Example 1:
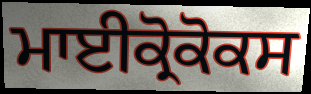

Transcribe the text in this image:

ਮਾਈਕ੍ਰੋਕੋਕਸ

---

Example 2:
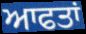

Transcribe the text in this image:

ਆਫਤਾਂ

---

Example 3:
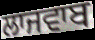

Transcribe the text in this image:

ਲਾਜਵਾਬ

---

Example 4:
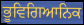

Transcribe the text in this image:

ਭੂਵਿਗਿਆਨਿਕ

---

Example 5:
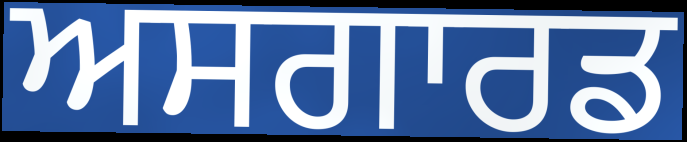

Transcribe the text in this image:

ਅਸਗਾਰਡ